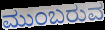
ಮುಂಬರುವ